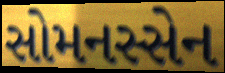
સોમનસ્સેન